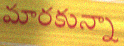
మారకున్నా